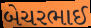
બેચરભાઈ